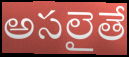
అసలైతే